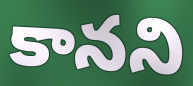
కానని